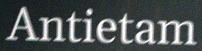
Antietam